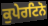
ਕੁਪੇਰਟਿਨੋ